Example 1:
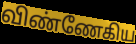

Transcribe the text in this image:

விண்ணேகிய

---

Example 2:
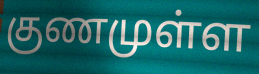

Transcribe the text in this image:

குணமுள்ள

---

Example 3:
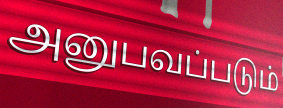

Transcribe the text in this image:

அனுபவப்படும்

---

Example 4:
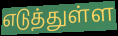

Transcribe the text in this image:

எடுத்துள்ள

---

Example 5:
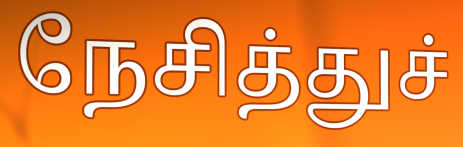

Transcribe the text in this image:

நேசித்துச்